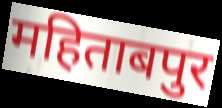
महिताबपुर